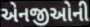
એનજીઓની